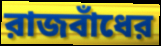
রাজবাঁধের